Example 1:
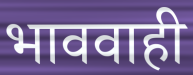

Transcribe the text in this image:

भाववाही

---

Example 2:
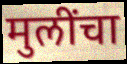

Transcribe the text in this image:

मुलींचा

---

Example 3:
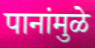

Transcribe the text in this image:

पानांमुळे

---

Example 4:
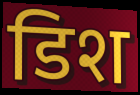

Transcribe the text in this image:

डिश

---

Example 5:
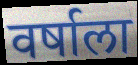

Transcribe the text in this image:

वर्षाला